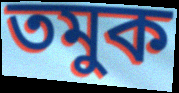
তমুক